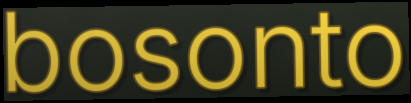
bosonto